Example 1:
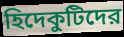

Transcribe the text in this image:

হিদেকুটিদের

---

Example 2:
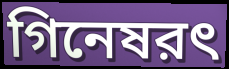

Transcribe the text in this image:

গিনেষরৎ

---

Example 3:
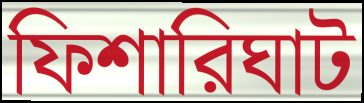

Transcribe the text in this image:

ফিশারিঘাট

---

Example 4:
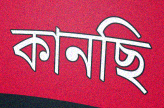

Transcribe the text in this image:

কানছি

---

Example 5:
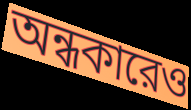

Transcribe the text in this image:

অন্ধকারেও